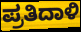
ಪ್ರತಿದಾಳಿ